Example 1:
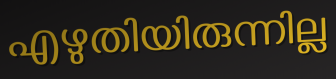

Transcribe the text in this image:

എഴുതിയിരുന്നില്ല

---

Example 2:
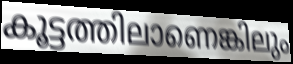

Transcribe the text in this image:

കൂട്ടത്തിലാണെങ്കിലും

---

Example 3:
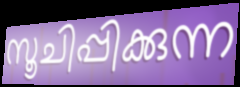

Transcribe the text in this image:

സൂചിപ്പിക്കുന്ന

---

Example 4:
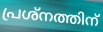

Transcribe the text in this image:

പ്രശ്നത്തിന്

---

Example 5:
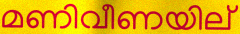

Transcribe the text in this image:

മണിവീണയില്